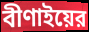
বীণাইয়ের